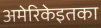
अमेरिकेइतका